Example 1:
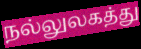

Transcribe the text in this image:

நல்லுலகத்து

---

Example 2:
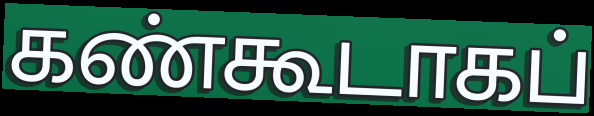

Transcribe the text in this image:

கண்கூடாகப்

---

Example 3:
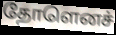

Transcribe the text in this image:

தோளெனச்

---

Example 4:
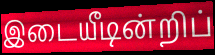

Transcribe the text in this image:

இடையீடின்றிப்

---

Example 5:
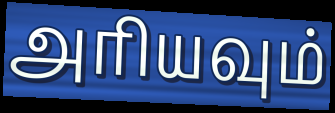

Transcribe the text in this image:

அரியவும்